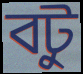
বটু